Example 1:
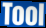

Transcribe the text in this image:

Tool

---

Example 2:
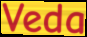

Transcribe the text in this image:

Veda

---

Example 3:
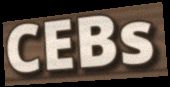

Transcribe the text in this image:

CEBs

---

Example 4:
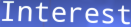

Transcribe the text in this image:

Interest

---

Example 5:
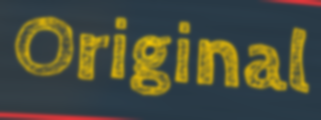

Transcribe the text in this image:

Original